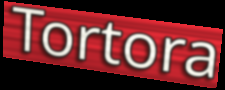
Tortora